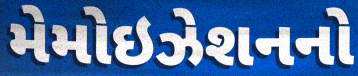
મેમોઇઝેશનનો